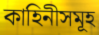
কাহিনীসমূহ